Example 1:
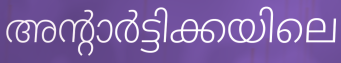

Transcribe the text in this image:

അന്റാർട്ടിക്കയിലെ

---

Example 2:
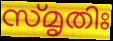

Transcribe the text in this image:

സ്മൃതിഃ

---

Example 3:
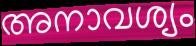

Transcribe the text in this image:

അനാവശ്യം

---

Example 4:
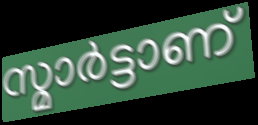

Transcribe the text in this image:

സ്മാർട്ടാണ്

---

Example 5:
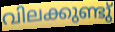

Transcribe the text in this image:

വിലക്കുണ്ടു്